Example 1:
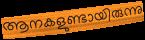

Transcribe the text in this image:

ആനകളുണ്ടായിരുന്നു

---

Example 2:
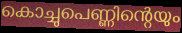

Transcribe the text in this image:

കൊച്ചുപെണ്ണിന്റെയും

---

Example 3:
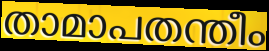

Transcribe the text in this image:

താമാപതന്തീം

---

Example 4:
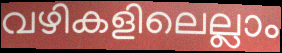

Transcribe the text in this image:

വഴികളിലെല്ലാം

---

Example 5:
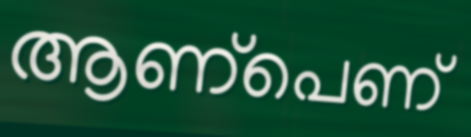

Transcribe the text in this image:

ആണ്പെണ്